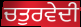
ਚਤੁਰਵੇਦੀ